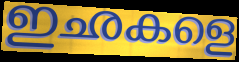
ഇഛകളെ